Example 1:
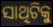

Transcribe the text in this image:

ସାଥିଟିକୁ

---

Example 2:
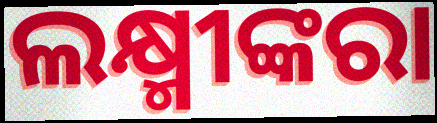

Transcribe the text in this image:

ଲକ୍ଷ୍ମୀଙ୍କରା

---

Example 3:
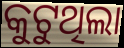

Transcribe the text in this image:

କୁଟୁଥିଲା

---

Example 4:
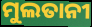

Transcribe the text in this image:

ମୁଲତାନୀ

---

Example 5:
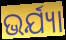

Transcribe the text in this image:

ଭର୍ଯ୍ୟା